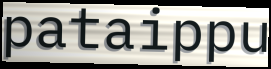
pataippu